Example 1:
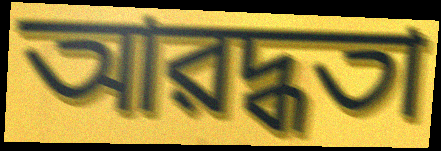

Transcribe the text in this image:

আৱদ্ধতা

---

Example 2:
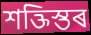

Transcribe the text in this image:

শক্তিস্তৰ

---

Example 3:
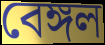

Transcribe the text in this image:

বেঙ্গল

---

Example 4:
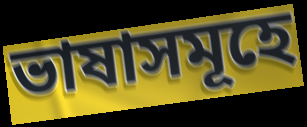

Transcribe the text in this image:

ভাষাসমূহে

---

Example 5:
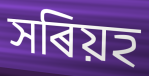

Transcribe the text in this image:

সৰিয়হ